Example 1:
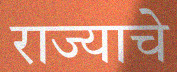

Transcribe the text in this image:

राज्याचे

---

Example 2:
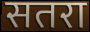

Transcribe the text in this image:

सतरा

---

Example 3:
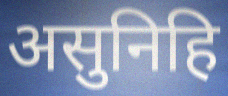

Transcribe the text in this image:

असुनिहि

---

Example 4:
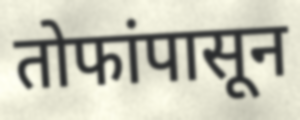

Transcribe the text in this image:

तोफांपासून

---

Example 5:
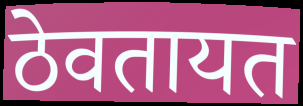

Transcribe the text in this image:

ठेवतायत